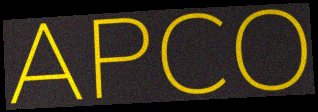
APCO